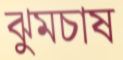
ঝুমচাষ